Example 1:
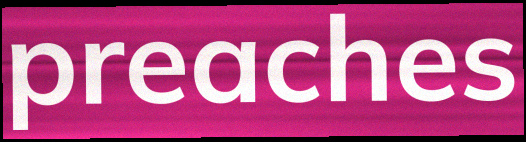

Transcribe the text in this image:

preaches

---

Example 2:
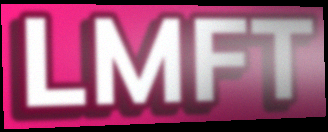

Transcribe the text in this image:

LMFT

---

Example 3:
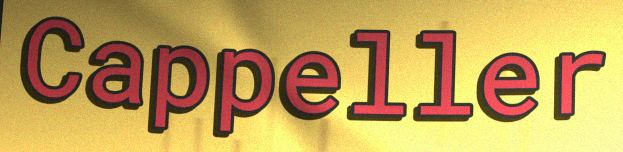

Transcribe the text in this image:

Cappeller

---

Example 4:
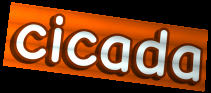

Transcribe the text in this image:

cicada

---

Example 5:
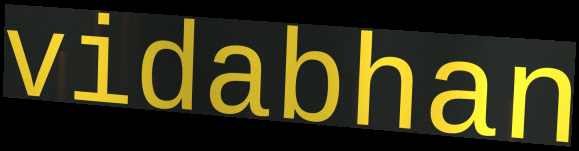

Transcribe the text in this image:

vidabhan